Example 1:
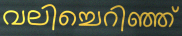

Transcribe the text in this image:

വലിച്ചെറിഞ്ഞ്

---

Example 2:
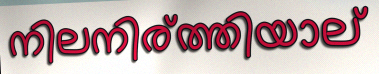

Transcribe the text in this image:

നിലനിര്ത്തിയാല്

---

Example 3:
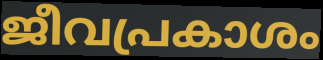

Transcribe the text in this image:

ജീവപ്രകാശം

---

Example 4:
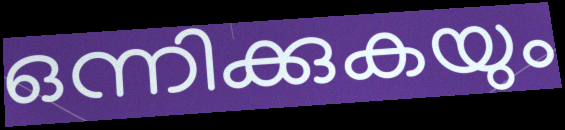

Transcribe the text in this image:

ഒന്നിക്കുകയും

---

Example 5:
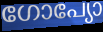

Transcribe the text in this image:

ഗോപ്യോ